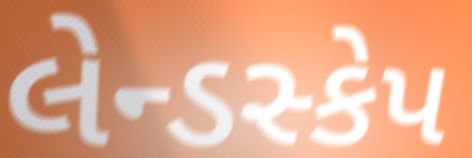
લેન્ડસ્કેપ